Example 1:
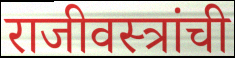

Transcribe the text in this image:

राजीवस्त्रांची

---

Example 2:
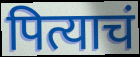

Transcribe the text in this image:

पित्याचं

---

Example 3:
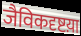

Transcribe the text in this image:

जैविकदृष्टय़ा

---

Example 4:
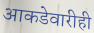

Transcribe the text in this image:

आकडेवारीही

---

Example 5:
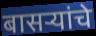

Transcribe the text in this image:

बासऱ्यांचे